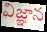
విజ్ఞాన